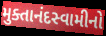
મુક્તાનંદસ્વામીનો